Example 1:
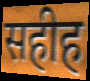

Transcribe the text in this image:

सहीह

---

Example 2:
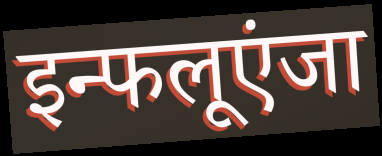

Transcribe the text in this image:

इन्फलूएंजा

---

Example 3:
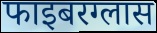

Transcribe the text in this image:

फाइबरग्लास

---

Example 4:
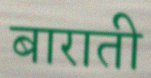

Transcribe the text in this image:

बाराती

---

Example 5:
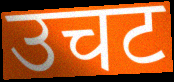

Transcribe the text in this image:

उचट